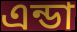
এন্ডা